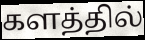
களத்தில்